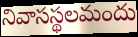
నివాసస్థలమందు